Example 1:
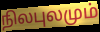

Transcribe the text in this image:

நிலபுலமும்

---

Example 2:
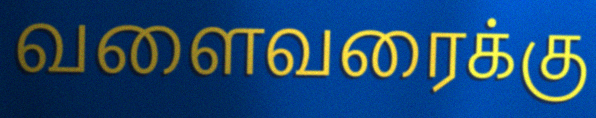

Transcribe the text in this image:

வளைவரைக்கு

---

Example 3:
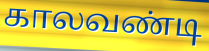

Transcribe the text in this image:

காலவண்டி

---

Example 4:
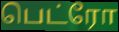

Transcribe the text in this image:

பெட்ரோ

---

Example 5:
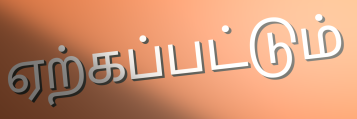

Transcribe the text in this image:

ஏற்கப்பட்டும்